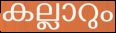
കല്ലാറും